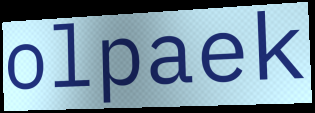
olpaek